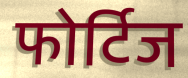
फोर्टिज